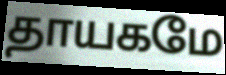
தாயகமே